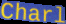
Charl